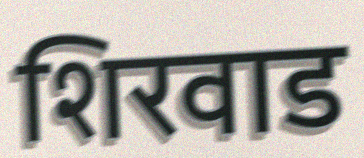
शिरवाड